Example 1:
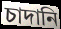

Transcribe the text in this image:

চাদানি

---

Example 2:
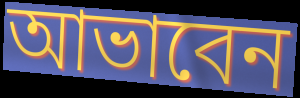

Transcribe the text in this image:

আভাবেন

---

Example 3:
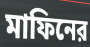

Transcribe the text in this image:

মাফিনের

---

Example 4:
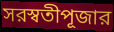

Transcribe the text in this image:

সরস্বতীপূজার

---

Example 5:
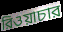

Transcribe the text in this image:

রিওয়াচার